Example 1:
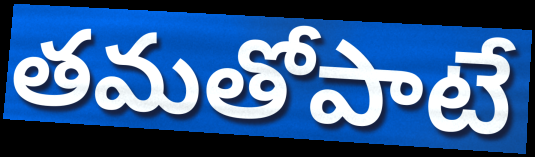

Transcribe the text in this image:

తమతోపాటే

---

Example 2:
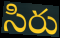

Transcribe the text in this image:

సిరు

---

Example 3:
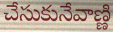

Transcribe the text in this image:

చేసుకునేవాణ్ణి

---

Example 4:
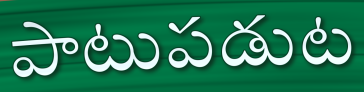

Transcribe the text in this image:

పాటుపడుట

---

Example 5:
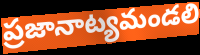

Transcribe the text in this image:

ప్రజానాట్యమండలి